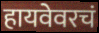
हायवेवरचं